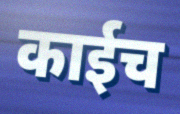
काईच